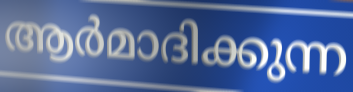
ആർമാദിക്കുന്ന